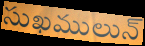
సుఖములున్